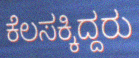
ಕೆಲಸಕ್ಕಿದ್ದರು